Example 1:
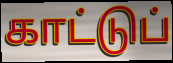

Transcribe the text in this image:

காட்டுப்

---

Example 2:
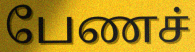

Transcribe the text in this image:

பேணச்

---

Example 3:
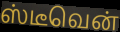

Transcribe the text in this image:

ஸ்டீவென்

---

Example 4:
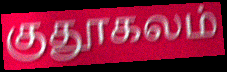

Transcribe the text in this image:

குதூகலம்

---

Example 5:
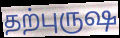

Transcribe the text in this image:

தற்புருஷ